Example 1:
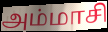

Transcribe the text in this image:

அம்மாசி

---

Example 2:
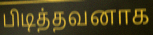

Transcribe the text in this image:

பிடித்தவனாக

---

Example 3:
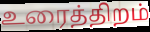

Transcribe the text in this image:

உரைத்திறம்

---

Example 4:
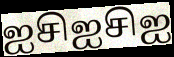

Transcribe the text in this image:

ஐசிஐசிஐ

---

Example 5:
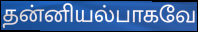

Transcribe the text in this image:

தன்னியல்பாகவே